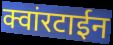
क्वांरटाईन